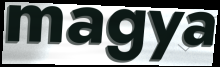
magya